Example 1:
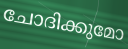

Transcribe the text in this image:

ചോദിക്കുമോ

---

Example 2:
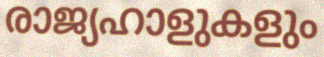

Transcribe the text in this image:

രാജ്യഹാളുകളും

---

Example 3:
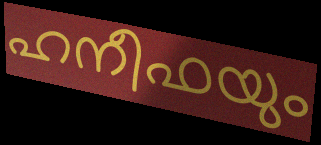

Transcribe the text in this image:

ഹനീഫയും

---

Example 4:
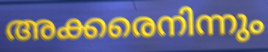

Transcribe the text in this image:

അക്കരെനിന്നും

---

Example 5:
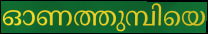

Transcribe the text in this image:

ഓണത്തുമ്പിയെ